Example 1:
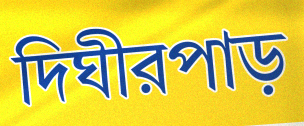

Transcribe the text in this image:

দিঘীরপাড়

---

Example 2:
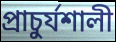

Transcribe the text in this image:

প্রাচুর্যশালী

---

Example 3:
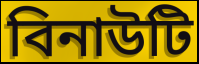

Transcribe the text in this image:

বিনাউটি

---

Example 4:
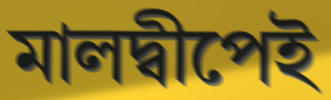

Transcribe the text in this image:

মালদ্বীপেই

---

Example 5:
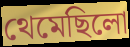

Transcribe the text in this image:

থেমেছিলো